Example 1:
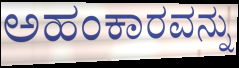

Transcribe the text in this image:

ಅಹಂಕಾರವನ್ನು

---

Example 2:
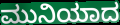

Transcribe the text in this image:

ಮುನಿಯಾದ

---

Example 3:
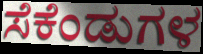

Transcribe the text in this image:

ಸೆಕೆಂಡುಗಳ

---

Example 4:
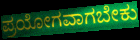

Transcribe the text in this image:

ಪ್ರಯೋಗವಾಗಬೇಕು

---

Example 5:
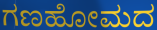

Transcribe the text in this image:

ಗಣಹೋಮದ